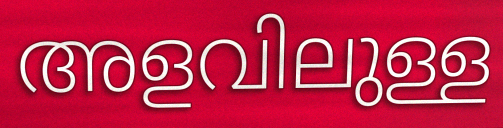
അളവിലുള്ള